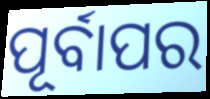
ପୂର୍ବାପର